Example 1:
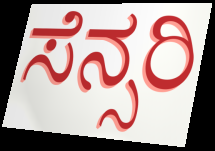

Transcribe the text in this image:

ಸೆನ್ಸರಿ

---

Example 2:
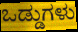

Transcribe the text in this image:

ಒಡ್ಡುಗಳು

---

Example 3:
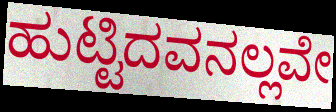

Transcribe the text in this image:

ಹುಟ್ಟಿದವನಲ್ಲವೇ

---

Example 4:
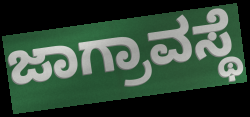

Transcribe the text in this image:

ಜಾಗ್ರಾವಸ್ಥೆ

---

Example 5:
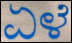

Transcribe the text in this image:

ಏಳೆ